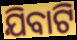
ଯିବାଟି